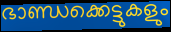
ഭാണ്ഡക്കെട്ടുകളും